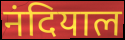
नंदियाल